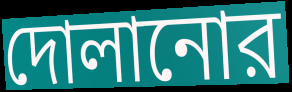
দোলানোর